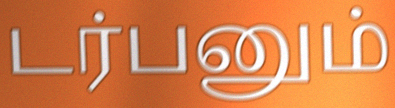
டர்பனும்